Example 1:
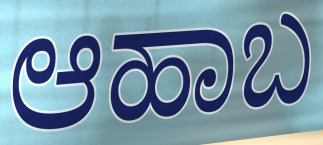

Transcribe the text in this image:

ಆಹಾಬ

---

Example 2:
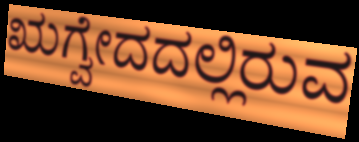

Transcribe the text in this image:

ಋಗ್ವೇದದಲ್ಲಿರುವ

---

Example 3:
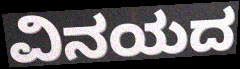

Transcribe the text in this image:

ವಿನಯದ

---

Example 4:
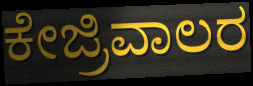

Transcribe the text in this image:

ಕೇಜ್ರಿವಾಲರ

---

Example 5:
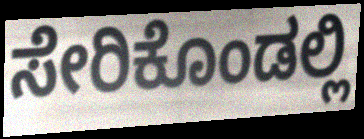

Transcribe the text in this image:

ಸೇರಿಕೊಂಡಲ್ಲಿ